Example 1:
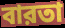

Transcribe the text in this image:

বারতা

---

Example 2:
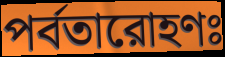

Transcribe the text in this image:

পর্বতারোহণঃ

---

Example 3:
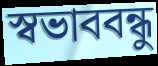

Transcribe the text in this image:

স্বভাববন্ধু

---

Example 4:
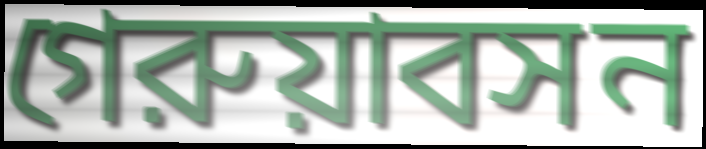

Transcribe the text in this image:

গেরুয়াবসন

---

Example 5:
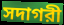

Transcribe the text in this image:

সদাগরী